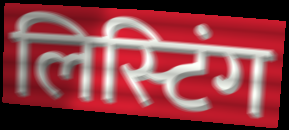
लिस्‍टिंग